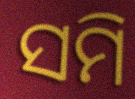
ସମି